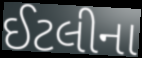
ઈટલીના